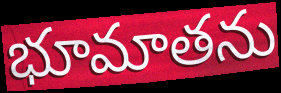
భూమాతను